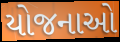
યોજનાઓ